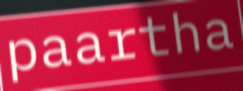
paartha